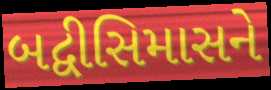
બદ્વીસિમાસને